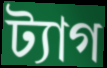
ট্যাগ